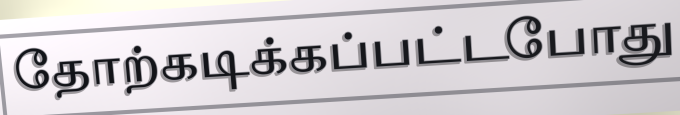
தோற்கடிக்கப்பட்டபோது